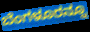
ಬೆಂಗಳೂರನ್ನೂ